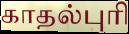
காதல்புரி